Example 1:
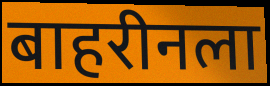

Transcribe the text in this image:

बाहरीनला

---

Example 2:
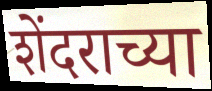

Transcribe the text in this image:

शेंदराच्या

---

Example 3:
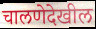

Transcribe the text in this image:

चालणेदेखील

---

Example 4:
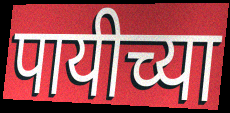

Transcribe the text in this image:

पायीच्या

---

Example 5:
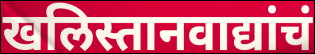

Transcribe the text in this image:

खलिस्तानवाद्यांचं